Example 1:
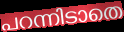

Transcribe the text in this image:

പറന്നിടാതെ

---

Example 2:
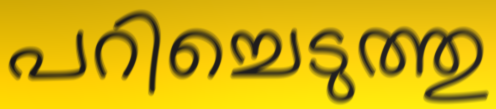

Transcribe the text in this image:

പറിച്ചെടുത്തു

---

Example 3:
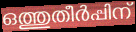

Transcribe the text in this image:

ഒത്തുതീർപ്പിന്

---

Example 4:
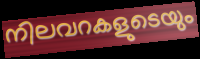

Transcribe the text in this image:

നിലവറകളുടെയും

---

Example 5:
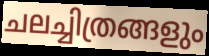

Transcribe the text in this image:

ചലച്ചിത്രങ്ങളും